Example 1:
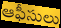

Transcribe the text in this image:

ఆఫీసులు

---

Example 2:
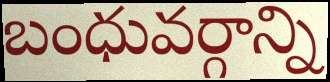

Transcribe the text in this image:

బంధువర్గాన్ని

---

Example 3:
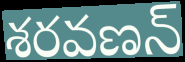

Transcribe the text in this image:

శరవణన్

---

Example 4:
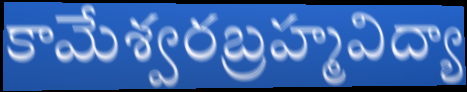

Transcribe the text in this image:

కామేశ్వరబ్రహ్మవిద్యా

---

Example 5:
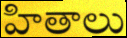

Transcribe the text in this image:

హితాలు